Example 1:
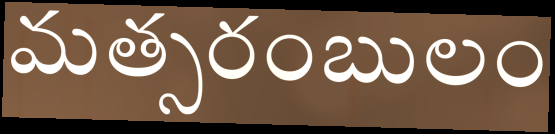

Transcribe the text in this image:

మత్సరంబులం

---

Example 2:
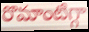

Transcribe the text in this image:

రొమాంటిగ్గా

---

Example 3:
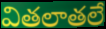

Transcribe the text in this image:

వితలాతలే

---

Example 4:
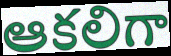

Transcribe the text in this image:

ఆకలిగా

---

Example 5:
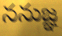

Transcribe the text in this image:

ననుజ్ఞ